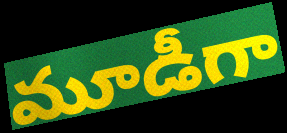
మూడీగా